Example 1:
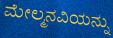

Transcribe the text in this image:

ಮೇಲ್ಮನವಿಯನ್ನು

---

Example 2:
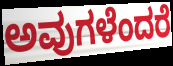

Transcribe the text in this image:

ಅವುಗಳೆಂದರೆ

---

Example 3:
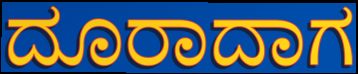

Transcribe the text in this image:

ದೂರಾದಾಗ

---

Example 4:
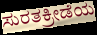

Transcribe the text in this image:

ಸುರತಕ್ರೀಡೆಯ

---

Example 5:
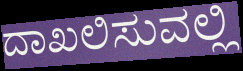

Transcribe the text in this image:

ದಾಖಲಿಸುವಲ್ಲಿ